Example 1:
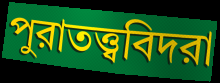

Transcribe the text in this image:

পুরাতত্ত্ববিদরা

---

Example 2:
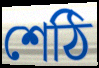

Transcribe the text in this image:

শেঠি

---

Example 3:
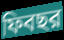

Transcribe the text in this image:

ফিবছর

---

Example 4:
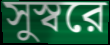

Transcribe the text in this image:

সুস্বরে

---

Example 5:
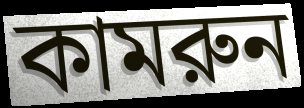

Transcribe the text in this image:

কামরুন